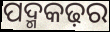
ପଦ୍ମକଢ଼ର